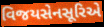
વિજયસેનસૂરિએ